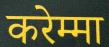
करेम्मा